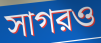
সাগরও